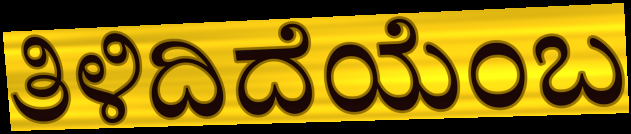
ತಿಳಿದಿದೆಯೆಂಬ